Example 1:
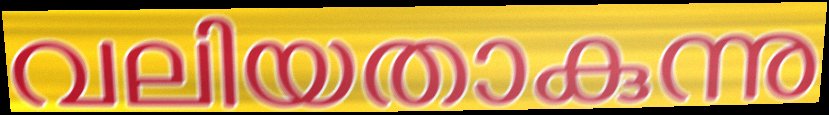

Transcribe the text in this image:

വലിയതാകുന്നു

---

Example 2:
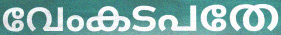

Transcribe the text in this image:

വേംകടപതേ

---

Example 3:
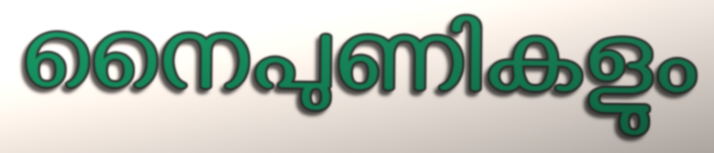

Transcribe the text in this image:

നൈപുണികളും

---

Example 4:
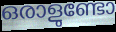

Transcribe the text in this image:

ഒരാളുണ്ടോ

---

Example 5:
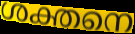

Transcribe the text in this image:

ശക്തനെ